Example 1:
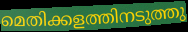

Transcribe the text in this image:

മെതിക്കളത്തിനടുത്തു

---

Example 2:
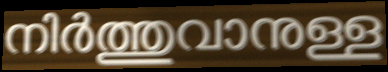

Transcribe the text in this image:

നിർത്തുവാനുള്ള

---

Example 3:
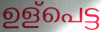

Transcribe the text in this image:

ഉള്പെട്ട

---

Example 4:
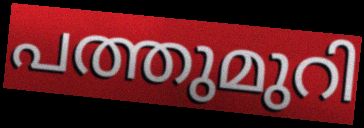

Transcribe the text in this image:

പത്തുമുറി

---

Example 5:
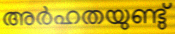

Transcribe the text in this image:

അർഹതയുണ്ടു്